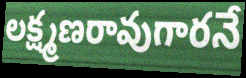
లక్ష్మణరావుగారనే